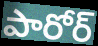
పారోర్